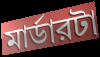
মার্ডারটা